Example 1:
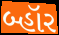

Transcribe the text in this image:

બ્હૉર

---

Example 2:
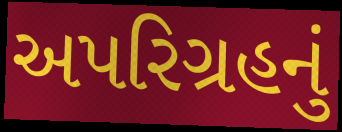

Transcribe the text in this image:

અપરિગ્રહનું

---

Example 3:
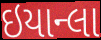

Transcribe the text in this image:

ઇયાન્લા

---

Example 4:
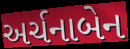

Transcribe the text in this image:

અર્ચનાબેન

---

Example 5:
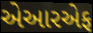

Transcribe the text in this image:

એઆરએફ